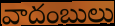
వాదంబులు